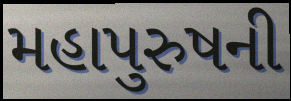
મહાપુરુષની